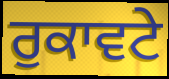
ਰੁਕਾਵਟੇ